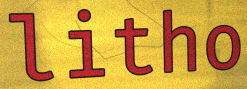
litho